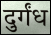
दुर्गंध